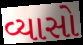
વ્યાસો